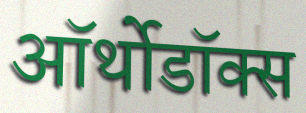
ऑर्थोडॉक्स